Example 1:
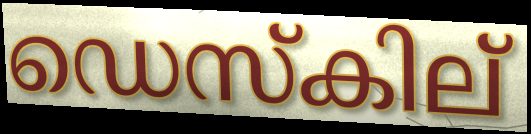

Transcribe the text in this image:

ഡെസ്കില്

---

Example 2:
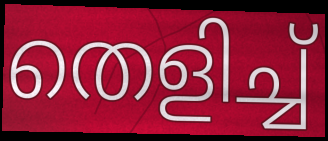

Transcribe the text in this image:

തെളിച്ച്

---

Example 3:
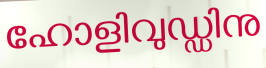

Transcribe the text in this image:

ഹോളിവുഡ്ഡിനു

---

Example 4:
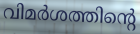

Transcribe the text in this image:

വിമർശത്തിന്റെ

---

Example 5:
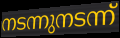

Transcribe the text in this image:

നടന്നുനടന്ന്